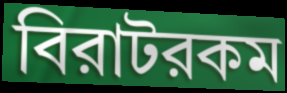
বিরাটরকম